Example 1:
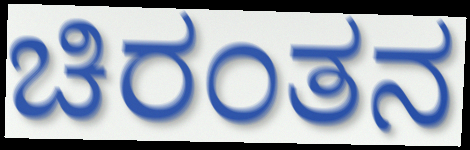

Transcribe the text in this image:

ಚಿರಂತನ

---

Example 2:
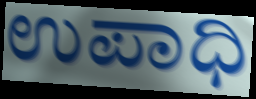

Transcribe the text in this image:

ಉಪಾಧಿ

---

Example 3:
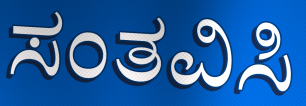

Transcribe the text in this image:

ಸಂತವಿಸಿ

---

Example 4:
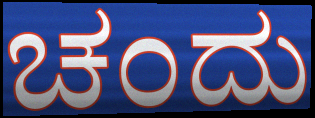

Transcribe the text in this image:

ಚಂದು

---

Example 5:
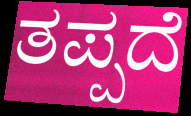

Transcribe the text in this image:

ತಪ್ಪದೆ